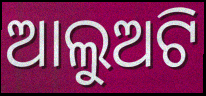
ଆଲୁଅଟି